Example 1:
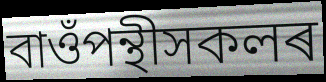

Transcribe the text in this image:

বাওঁপন্থীসকলৰ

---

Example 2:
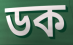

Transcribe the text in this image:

ডক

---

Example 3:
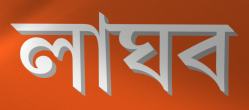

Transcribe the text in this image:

লাঘব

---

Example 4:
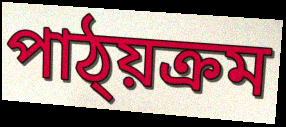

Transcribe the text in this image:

পাঠ্য়ক্ৰম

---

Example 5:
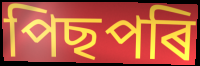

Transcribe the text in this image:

পিছপৰি